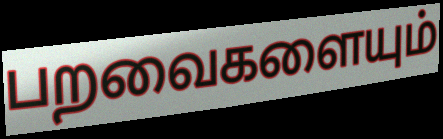
பறவைகளையும்